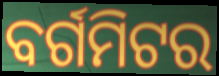
ବର୍ଗମିଟର